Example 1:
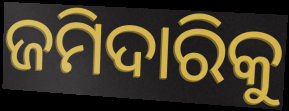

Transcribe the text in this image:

ଜମିଦାରିକୁ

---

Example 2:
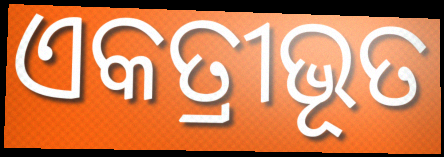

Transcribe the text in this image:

ଏକତ୍ରୀଭୂତ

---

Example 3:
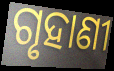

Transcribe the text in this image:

ଗୃହାଣୀ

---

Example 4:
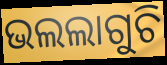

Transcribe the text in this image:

ଭଲଲାଗୁଚି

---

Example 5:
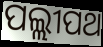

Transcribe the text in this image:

ପଲ୍ଲୀପଥ